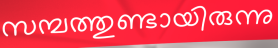
സമ്പത്തുണ്ടായിരുന്നു